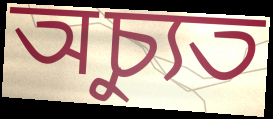
অচ্যুত